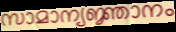
സാമാന്യജ്ഞാനം